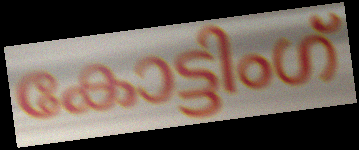
കോട്ടിംഗ്